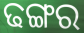
ଢଙ୍ଗର